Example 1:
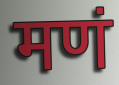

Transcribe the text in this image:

मणं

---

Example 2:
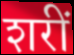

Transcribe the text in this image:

शरीं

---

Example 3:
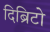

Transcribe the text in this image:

दिब्रिटो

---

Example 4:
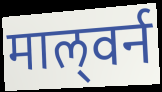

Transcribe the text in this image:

माल्वर्न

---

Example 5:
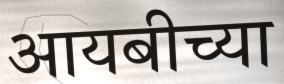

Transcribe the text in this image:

आयबीच्या